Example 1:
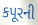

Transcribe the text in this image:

કપૂરની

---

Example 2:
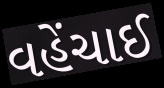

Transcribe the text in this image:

વહેંચાઈ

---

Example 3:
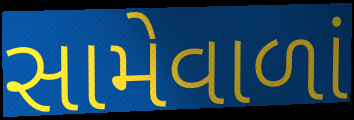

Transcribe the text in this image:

સામેવાળાં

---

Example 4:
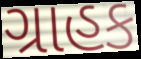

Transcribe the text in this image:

ગ્રાહક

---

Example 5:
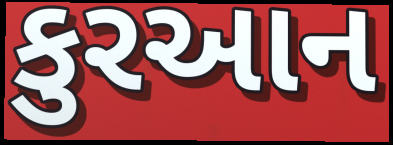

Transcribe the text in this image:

કુરઆન